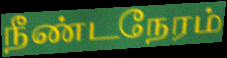
நீண்டநேரம்